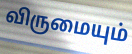
விருமையும்